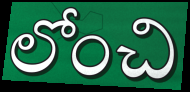
లోంచి